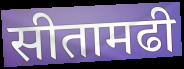
सीतामढी